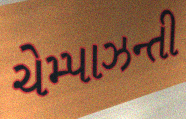
ચેમ્પાઝન્તી